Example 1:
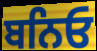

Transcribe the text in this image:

ਬਨਿਓ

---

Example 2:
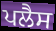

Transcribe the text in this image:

ਪਲੈਸ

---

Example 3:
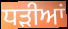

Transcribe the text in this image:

ਧੜੀਆਂ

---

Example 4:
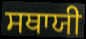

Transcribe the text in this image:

ਸਥਾਯੀ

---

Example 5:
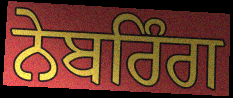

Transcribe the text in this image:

ਨੇਬਰਿੰਗ